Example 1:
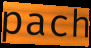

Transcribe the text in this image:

pach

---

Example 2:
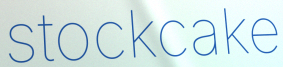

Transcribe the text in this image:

stockcake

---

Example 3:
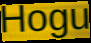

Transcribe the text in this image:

Hogu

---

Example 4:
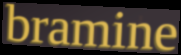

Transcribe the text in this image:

bramine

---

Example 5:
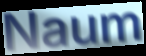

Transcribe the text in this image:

Naum